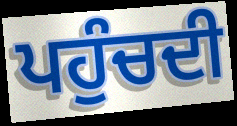
ਪਹੁੰਚਦੀ